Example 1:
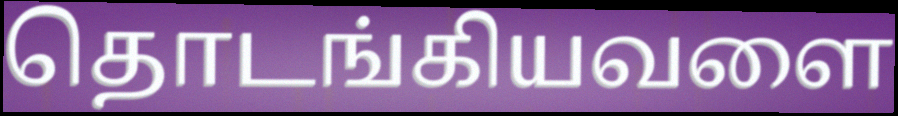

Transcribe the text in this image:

தொடங்கியவளை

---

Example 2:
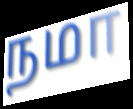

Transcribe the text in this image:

நமா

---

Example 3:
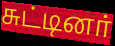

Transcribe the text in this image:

சுட்டினர்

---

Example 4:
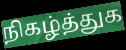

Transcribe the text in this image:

நிகழ்த்துக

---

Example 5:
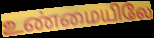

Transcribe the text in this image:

உண்மையிலே